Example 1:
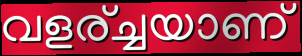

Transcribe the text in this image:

വളര്ച്ചയാണ്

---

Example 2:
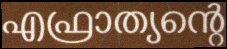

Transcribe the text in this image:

എഫ്രാത്യന്റെ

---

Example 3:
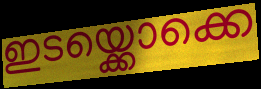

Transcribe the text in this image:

ഇടയ്ക്കൊക്കെ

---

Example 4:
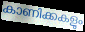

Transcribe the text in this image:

കാണിക്കകളും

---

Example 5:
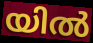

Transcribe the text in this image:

യിൽ